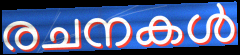
രചനകൾ